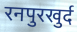
रनपुरखुर्द